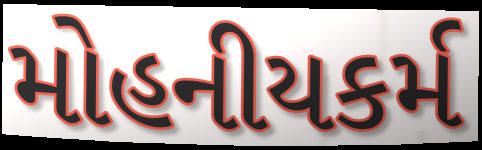
મોહનીયકર્મ